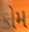
ક્રોમ